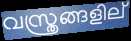
വസ്ത്രങ്ങളില്